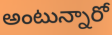
అంటున్నారో